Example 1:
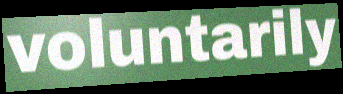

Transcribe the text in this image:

voluntarily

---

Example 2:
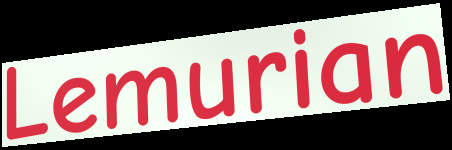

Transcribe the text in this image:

Lemurian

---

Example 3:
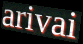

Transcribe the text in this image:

arivai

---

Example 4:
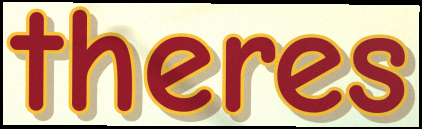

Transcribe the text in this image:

theres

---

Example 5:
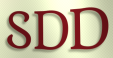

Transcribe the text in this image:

SDD